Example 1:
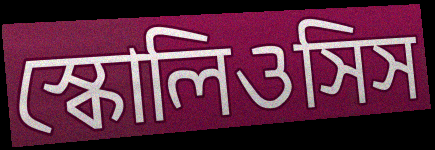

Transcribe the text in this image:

স্কোলিওসিস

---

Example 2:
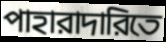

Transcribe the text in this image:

পাহারাদারিতে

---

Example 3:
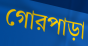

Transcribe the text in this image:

গোরপাড়া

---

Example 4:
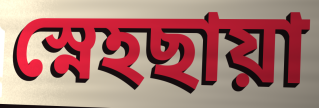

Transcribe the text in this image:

স্নেহছায়া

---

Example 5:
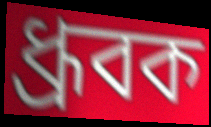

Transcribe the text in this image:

ধ্রূবক